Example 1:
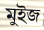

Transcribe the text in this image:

মুইজ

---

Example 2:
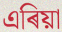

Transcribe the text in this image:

এৰিয়া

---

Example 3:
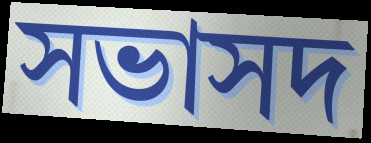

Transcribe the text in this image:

সভাসদ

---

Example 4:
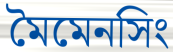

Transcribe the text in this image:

মৈমেনসিং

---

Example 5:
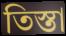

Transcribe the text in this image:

তিস্তা